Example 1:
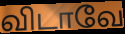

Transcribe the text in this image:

விடாவே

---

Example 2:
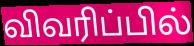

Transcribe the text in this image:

விவரிப்பில்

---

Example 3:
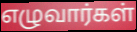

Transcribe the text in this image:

எழுவார்கள்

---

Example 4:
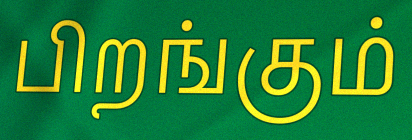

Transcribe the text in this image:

பிறங்கும்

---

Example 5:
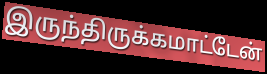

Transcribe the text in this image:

இருந்திருக்கமாட்டேன்